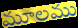
మూలము